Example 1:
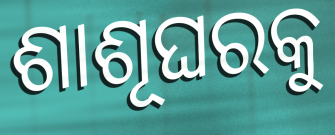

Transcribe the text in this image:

ଶାଶୂଘରକୁ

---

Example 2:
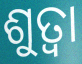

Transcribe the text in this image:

ଶୁତ୍ବା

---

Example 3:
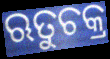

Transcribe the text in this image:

ଋତୁଚକ୍ର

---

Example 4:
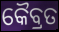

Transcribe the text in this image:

କୈବ୍ରତ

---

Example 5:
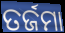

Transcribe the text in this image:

ତର୍ଜମା